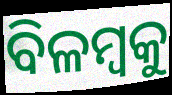
ବିଳମ୍ୱକୁ